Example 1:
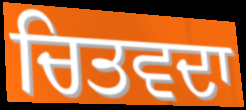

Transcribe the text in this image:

ਚਿਤਵਦਾ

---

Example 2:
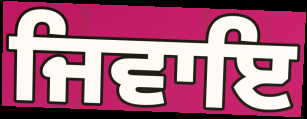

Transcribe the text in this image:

ਜਿਵਾਇ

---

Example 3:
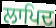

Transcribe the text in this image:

ਲਾਪਿਦ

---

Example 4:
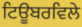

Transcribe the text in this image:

ਟਿਊਬਰਵਿਲੇ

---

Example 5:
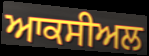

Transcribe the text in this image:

ਆਕਸੀਅਲ